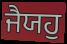
ਜੈਯਹੁ